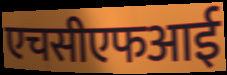
एचसीएफआई